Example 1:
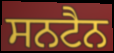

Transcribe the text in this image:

ਸਨਟੈਨ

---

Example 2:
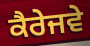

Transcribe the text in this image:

ਕੈਰੇਜਵੇ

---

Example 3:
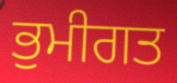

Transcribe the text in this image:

ਭੁਮੀਗਤ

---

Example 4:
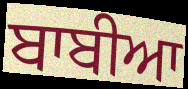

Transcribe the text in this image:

ਬਾਬੀਆ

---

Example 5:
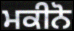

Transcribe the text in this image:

ਮਕੀਨੋ